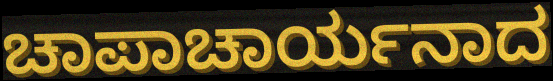
ಚಾಪಾಚಾರ್ಯನಾದ